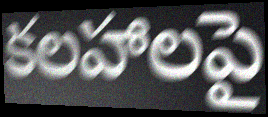
కలహాలపై